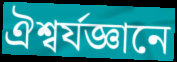
ঐশ্বর্যজ্ঞানে